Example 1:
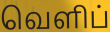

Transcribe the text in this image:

வெளிப்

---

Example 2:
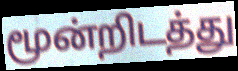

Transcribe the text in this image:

மூன்றிடத்து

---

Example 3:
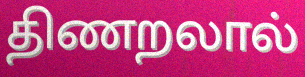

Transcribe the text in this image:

திணறலால்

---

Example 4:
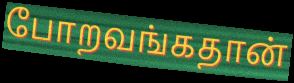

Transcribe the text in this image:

போறவங்கதான்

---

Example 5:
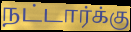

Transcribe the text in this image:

நட்டார்க்கு